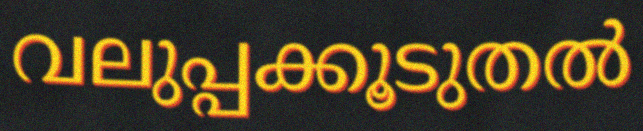
വലുപ്പക്കൂടുതൽ